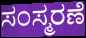
ಸಂಸ್ಮರಣೆ